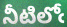
నీటిలోఁ